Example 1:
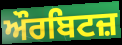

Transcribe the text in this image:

ਔਰਬਿਟਜ਼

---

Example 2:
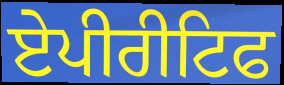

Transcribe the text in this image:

ਏਪੀਰੀਟਿਫ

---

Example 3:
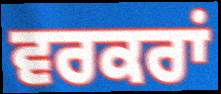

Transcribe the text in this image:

ਵਰਕਰਾਂ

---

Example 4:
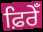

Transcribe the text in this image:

ਫ਼ਿਰੇਁ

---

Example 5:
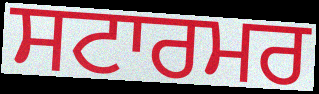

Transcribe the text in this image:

ਸਟਾਰਮਰ